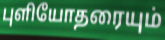
புளியோதரையும்